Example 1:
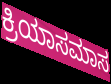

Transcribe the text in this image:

ಕ್ರಿಯಾಸಮಾಸ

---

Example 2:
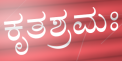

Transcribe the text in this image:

ಕೃತಶ್ರಮಃ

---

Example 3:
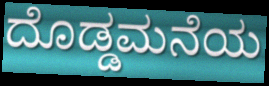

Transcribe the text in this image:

ದೊಡ್ಡಮನೆಯ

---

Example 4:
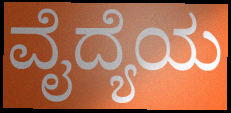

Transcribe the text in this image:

ವೈದ್ಯೆಯ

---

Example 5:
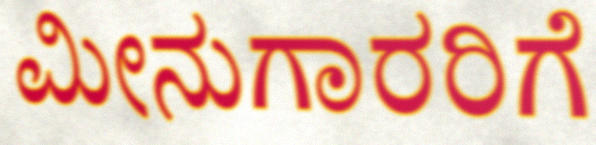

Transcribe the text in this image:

ಮೀನುಗಾರರಿಗೆ